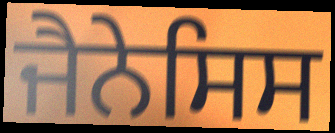
ਜੈਨੇਸਿਸ